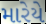
મારેયે